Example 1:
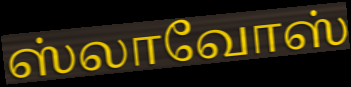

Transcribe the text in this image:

ஸ்லாவோஸ்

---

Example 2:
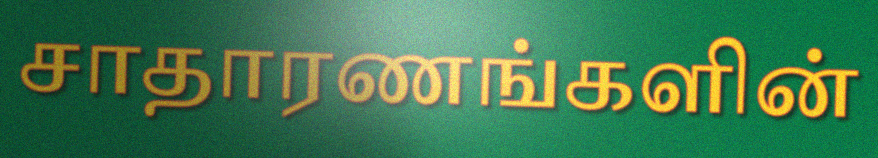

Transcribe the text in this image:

சாதாரணங்களின்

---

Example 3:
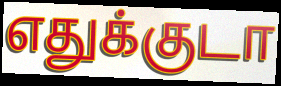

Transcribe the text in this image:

எதுக்குடா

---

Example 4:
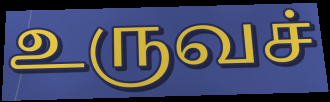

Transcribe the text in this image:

உருவச்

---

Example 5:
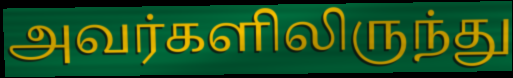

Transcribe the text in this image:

அவர்களிலிருந்து